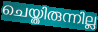
ചെയ്തിരുന്നില്ല